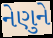
નેણુને